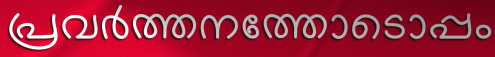
പ്രവർത്തനത്തോടൊപ്പം